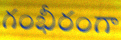
గంభీరంగా